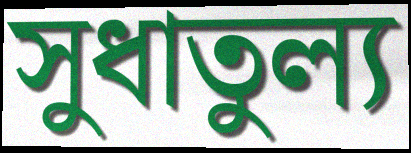
সুধাতুল্য